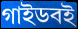
গাইডবই